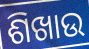
ଶିଖାଉ